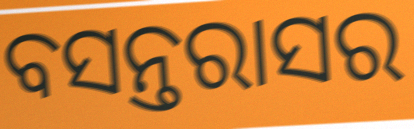
ବସନ୍ତରାସର